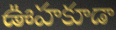
ఊహకూడా